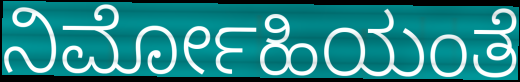
ನಿರ್ಮೋಹಿಯಂತೆ